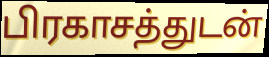
பிரகாசத்துடன்